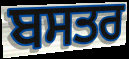
ਬਸਤਰ